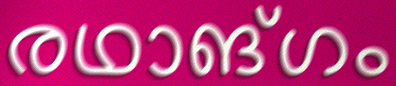
രഥാങ്ഗം